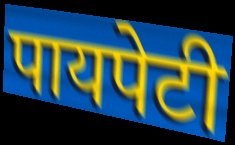
पायपेटी